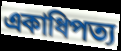
একাধিপত্য